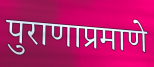
पुराणाप्रमाणे